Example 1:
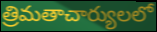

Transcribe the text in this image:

త్రిమతాచార్యులలో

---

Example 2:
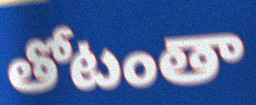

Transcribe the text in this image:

తోటంతా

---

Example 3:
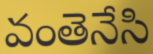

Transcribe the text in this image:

వంతెనేసి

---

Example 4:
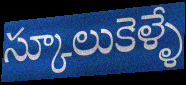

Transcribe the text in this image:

స్కూలుకెళ్ళే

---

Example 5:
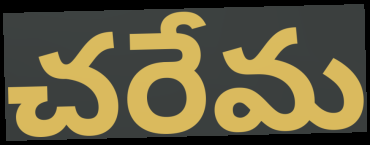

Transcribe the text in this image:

చరేమ